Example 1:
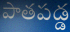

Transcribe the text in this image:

పాతపడ్డ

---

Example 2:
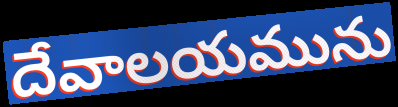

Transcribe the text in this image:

దేవాలయమును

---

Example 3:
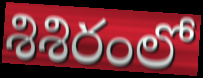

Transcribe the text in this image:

శిశిరంలో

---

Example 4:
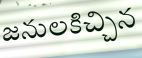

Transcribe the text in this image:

జనులకిచ్చిన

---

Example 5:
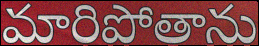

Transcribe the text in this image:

మారిపోతాను